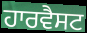
ਹਾਰਵੈਸਟ